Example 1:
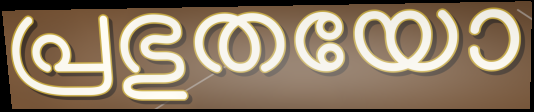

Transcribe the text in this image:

പ്രഭുതയോ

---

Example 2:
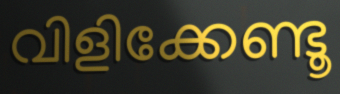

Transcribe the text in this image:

വിളിക്കേണ്ടൂ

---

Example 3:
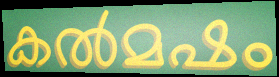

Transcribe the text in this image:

കൽമഷം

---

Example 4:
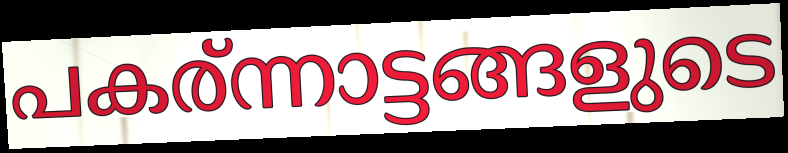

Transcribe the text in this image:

പകര്ന്നാട്ടങ്ങളുടെ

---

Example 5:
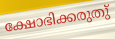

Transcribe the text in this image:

ക്ഷോഭിക്കരുതു്